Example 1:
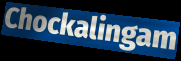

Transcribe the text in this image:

Chockalingam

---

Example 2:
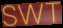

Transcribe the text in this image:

SWT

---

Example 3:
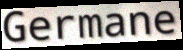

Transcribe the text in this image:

Germane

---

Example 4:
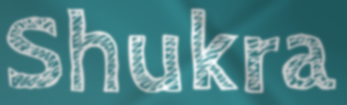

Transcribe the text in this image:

Shukra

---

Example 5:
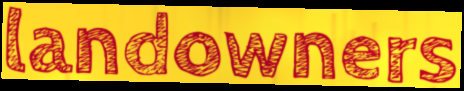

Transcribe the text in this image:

landowners